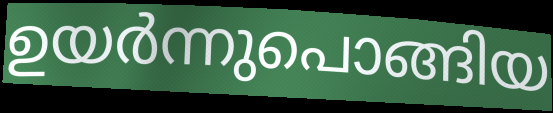
ഉയർന്നുപൊങ്ങിയ